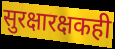
सुरक्षारक्षकही